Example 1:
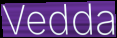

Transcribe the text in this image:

Vedda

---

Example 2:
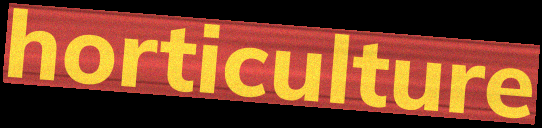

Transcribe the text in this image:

horticulture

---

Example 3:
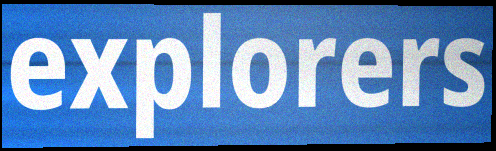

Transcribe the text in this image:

explorers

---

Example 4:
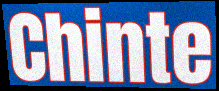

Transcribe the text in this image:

Chinte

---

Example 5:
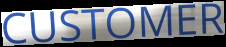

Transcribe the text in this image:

CUSTOMER